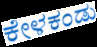
ಕೇಳಕಂಡು